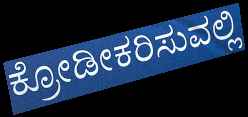
ಕ್ರೋಡೀಕರಿಸುವಲ್ಲಿ